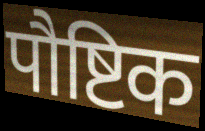
पौष्टिक